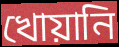
খোয়ানি